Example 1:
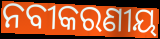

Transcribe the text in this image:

ନବୀକରଣୀୟ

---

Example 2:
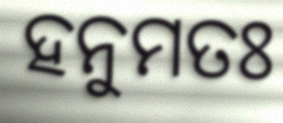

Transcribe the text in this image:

ହନୁମତଃ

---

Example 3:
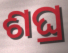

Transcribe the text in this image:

ଶଘ୍ର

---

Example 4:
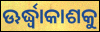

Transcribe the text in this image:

ଊର୍ଦ୍ଧ୍ୱାକାଶକୁ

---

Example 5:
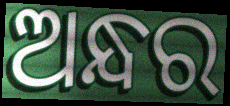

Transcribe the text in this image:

ଅନ୍ଧର